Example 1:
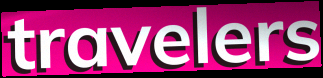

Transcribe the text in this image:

travelers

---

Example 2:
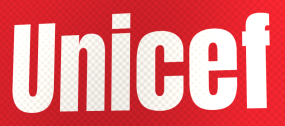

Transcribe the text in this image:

Unicef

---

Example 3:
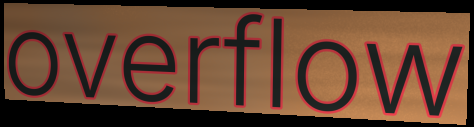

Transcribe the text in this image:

overflow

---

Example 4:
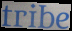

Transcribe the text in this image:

tribe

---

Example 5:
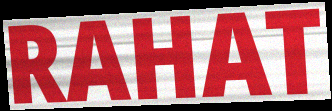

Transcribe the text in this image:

RAHAT